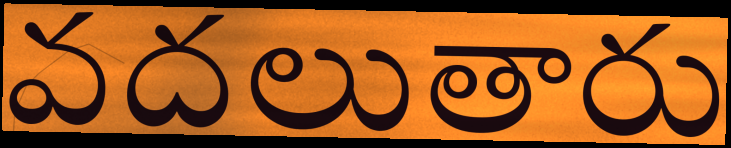
వదలుతారు